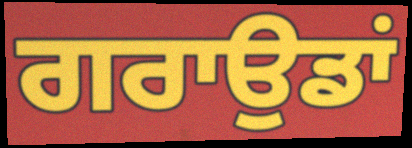
ਗਰਾਉਡਾਂ